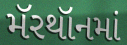
મૅરથૉનમાં